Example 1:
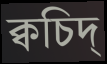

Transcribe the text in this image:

ক্বচিদ্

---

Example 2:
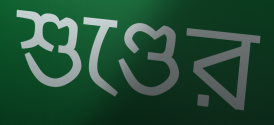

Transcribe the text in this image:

শুণ্ডের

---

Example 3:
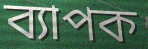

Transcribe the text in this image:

ব্যাপক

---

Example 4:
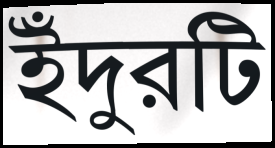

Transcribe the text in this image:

ইঁদুরটি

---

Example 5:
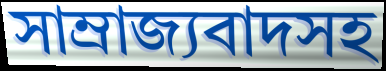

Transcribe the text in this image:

সাম্রাজ্যবাদসহ